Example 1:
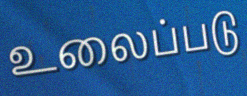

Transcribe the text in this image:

உலைப்படு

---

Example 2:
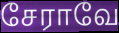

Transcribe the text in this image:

சேராவே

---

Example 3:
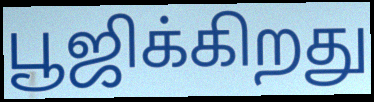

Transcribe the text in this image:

பூஜிக்கிறது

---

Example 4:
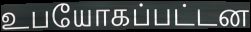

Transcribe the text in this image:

உபயோகப்பட்டன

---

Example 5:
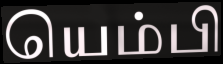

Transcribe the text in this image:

யெம்பி